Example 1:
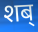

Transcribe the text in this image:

शब्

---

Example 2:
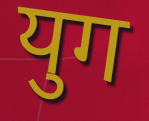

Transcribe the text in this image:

युग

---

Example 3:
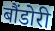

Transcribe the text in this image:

बौंडोरी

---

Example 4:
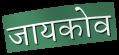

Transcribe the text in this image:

जायकोव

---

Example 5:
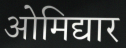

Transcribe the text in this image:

ओमिद्यार